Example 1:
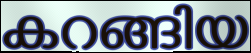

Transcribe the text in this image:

കറങ്ങിയ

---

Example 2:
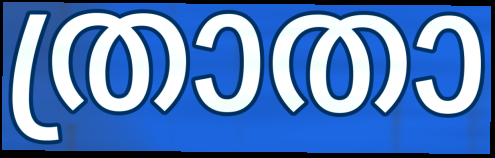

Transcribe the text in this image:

ത്രാതാ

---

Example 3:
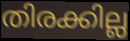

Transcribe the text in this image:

തിരക്കില്ല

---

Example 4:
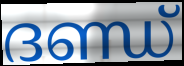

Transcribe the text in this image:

ദണ്ഡ്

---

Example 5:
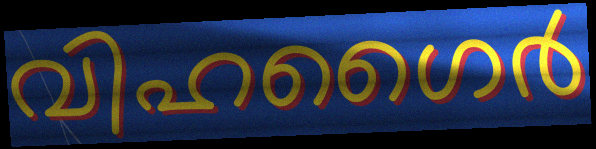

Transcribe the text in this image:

വിഹഗൈർ